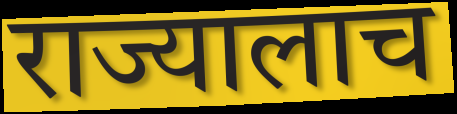
राज्यालाच